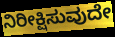
ನಿರೀಕ್ಷಿಸುವುದೇ